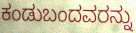
ಕಂಡುಬಂದವರನ್ನು